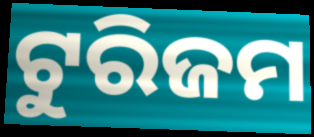
ଟୁରିଜମ